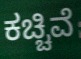
ಕಚ್ಚಿವೆ